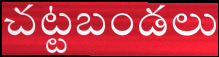
చట్టబండలు